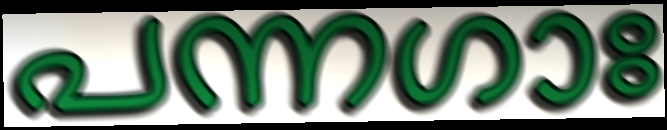
പന്നഗാഃ